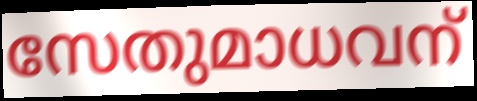
സേതുമാധവന്